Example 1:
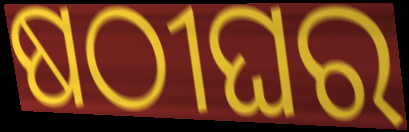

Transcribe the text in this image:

ଷଠୀଘର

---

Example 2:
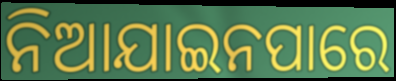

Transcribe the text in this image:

ନିଆଯାଇନପାରେ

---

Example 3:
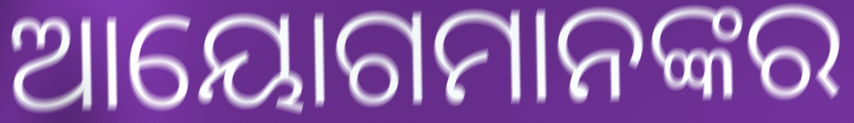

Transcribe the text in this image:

ଆୟୋଗମାନଙ୍କର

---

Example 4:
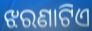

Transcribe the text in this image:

ଝରଣାଟିଏ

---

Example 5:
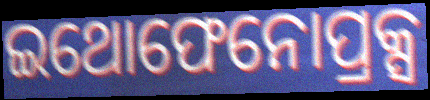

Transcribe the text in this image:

ଇଥୋଫେନୋପ୍ରକ୍ସ